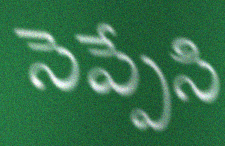
సెప్పేసి